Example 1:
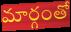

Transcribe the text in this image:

మార్గంతో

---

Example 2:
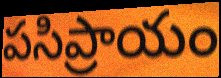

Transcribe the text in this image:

పసిప్రాయం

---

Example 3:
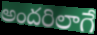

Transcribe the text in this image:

అందరిలాగే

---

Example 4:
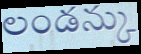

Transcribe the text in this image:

లండన్కు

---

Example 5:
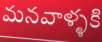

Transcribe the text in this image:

మనవాళ్ళకి